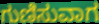
ಗುಣಿಸುವಾಗ